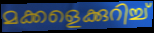
മക്കളെക്കുറിച്ച്